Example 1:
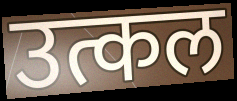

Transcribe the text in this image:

उत्कल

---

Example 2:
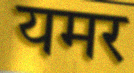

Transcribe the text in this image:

यमर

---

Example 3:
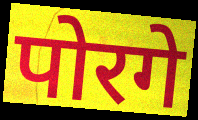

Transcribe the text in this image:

पोरगे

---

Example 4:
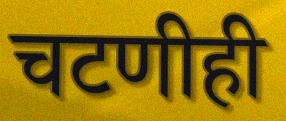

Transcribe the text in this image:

चटणीही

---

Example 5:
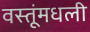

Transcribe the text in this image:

वस्तूंमधली